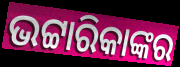
ଭଟ୍ଟାରିକାଙ୍କର